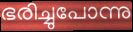
ഭരിച്ചുപോന്നു